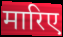
मारिए